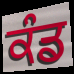
ਕੰਡ